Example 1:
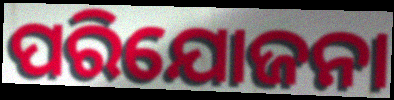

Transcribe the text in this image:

ପରିଯୋଜନା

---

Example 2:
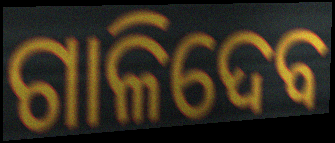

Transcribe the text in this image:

ଗାଳିଦେବ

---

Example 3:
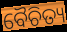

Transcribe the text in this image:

ବୈଚିତ୍ୟ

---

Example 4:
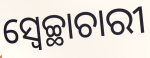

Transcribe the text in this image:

ସ୍ୱେଚ୍ଛାଚାରୀ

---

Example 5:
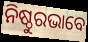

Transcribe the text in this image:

ନିଷ୍ଠୁରଭାବେ